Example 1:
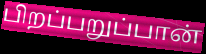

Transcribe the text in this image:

பிறப்பறுப்பான்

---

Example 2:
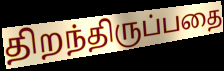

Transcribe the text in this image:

திறந்திருப்பதை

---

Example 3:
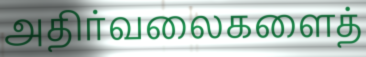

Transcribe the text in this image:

அதிர்வலைகளைத்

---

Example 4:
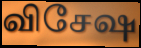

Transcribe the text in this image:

விசேஷ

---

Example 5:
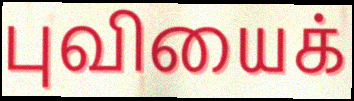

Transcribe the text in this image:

புவியைக்